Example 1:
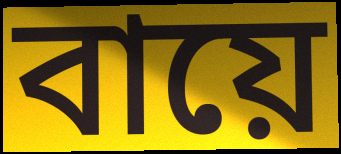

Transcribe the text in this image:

বায়ে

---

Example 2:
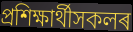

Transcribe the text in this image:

প্ৰশিক্ষাৰ্থীসকলৰ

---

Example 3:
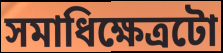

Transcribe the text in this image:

সমাধিক্ষেত্ৰটো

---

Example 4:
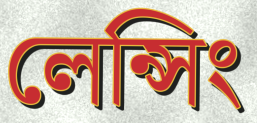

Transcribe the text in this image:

লেন্সিং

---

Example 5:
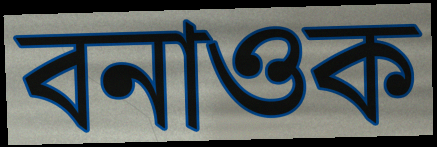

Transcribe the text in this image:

বনাওক